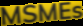
MSMEs